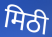
मिठी